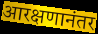
आरक्षणानंतर